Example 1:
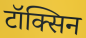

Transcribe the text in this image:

टॉक्सिन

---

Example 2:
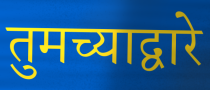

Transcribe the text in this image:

तुमच्याद्वारे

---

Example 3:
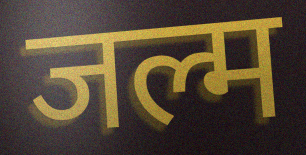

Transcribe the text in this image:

जल्म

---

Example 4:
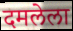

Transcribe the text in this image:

दमलेला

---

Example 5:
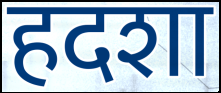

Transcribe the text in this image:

हदशा